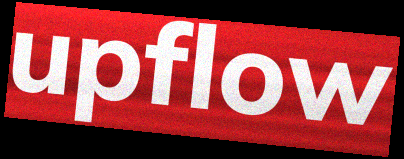
upflow